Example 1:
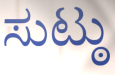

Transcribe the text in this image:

ಸುಟ್ಠು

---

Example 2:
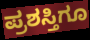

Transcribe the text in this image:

ಪ್ರಶಸ್ತಿಗೂ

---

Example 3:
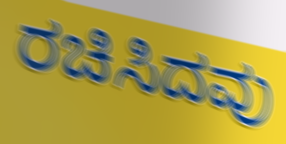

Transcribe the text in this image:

ರಚಿಸಿದವು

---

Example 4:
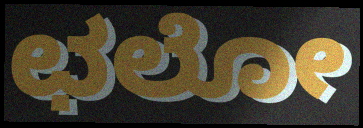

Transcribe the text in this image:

ಛಲೋ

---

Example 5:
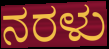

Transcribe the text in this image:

ನರಳು